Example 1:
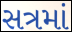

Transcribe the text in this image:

સત્રમાં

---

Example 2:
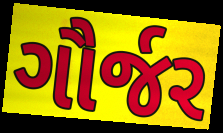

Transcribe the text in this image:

ગૌર્જર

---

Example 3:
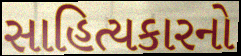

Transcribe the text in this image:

સાહિત્યકારનો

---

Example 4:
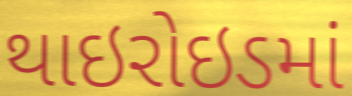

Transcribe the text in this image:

થાઇરોઇડમાં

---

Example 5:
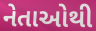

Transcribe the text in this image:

નેતાઓથી